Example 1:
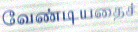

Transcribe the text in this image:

வேண்டியதைச்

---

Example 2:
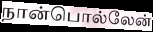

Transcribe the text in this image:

நான்பொல்லேன்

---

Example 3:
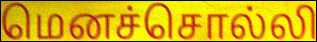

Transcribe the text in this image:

மெனச்சொல்லி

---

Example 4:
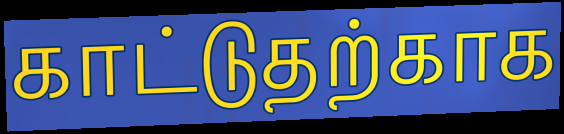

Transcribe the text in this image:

காட்டுதற்காக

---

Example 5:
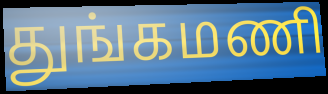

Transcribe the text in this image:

துங்கமணி